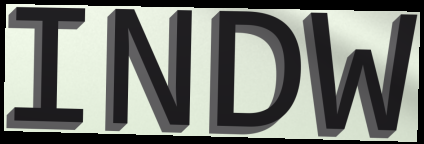
INDW